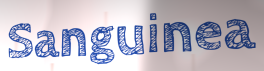
Sanguinea